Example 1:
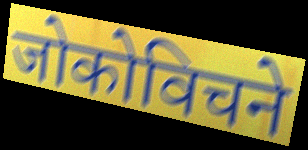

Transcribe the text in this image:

जोकोविचने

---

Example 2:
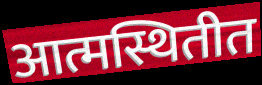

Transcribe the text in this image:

आत्मस्थितीत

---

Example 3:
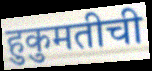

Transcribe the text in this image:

हुकुमतीची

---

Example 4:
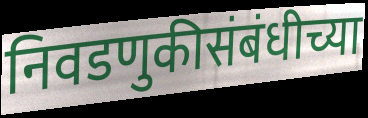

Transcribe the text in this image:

निवडणुकीसंबंधीच्या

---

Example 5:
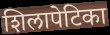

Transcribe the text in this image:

शिलापेटिका